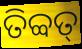
ତିବ୍ବତ୍